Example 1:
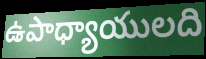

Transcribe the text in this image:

ఉపాధ్యాయులది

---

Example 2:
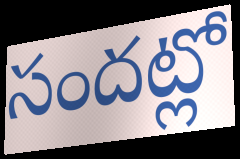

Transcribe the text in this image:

సందట్లో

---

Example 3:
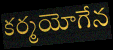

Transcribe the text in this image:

కర్మయోగేన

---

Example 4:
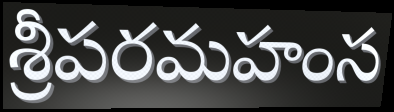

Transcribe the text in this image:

శ్రీపరమహంస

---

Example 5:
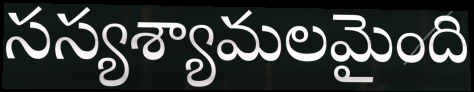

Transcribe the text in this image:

సస్యశ్యామలమైంది